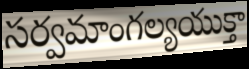
సర్వమాంగల్యయుక్తా